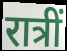
रात्रीं